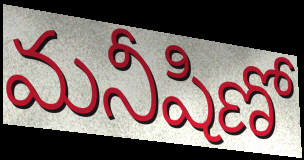
మనీషిణో